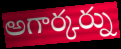
అగార్కర్ను